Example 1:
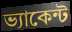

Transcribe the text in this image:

ভ্যাকেন্ট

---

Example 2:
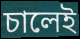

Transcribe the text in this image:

চালেই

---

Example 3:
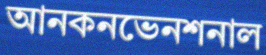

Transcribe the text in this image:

আনকনভেনশনাল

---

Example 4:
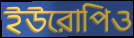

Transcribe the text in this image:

ইউরোপিও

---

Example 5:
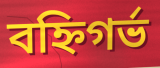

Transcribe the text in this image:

বহ্নিগর্ভ